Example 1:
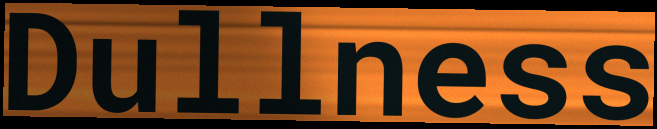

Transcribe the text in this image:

Dullness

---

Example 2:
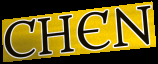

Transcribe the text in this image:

CHEN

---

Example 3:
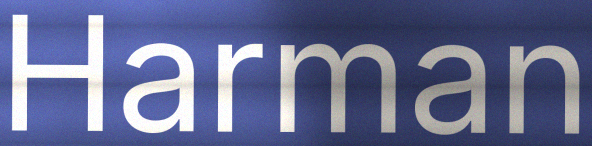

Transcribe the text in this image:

Harman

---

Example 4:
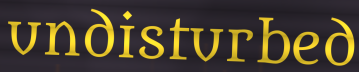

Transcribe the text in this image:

undisturbed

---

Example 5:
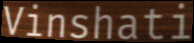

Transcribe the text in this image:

Vinshati